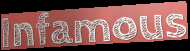
Infamous